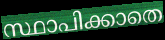
സ്ഥാപിക്കാതെ